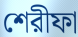
শেরীফা